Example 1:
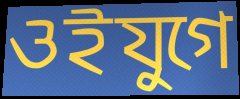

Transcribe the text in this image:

ওইযুগে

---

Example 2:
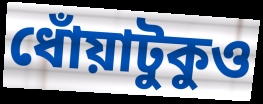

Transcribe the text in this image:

ধোঁয়াটুকুও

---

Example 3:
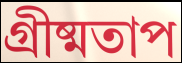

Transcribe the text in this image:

গ্রীষ্মতাপ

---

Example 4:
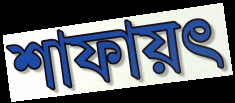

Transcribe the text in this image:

শাফায়ৎ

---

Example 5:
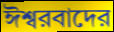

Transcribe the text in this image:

ঈশ্বরবাদের